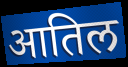
आतिल